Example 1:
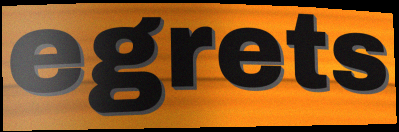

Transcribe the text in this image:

egrets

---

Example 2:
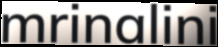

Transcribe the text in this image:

mrinalini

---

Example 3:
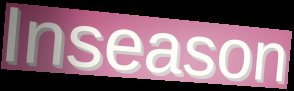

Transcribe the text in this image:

Inseason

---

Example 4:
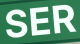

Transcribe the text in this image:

SER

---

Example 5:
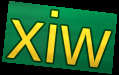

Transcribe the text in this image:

xiw